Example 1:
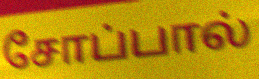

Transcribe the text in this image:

சோப்பால்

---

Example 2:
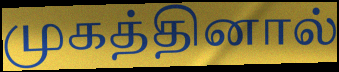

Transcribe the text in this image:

முகத்தினால்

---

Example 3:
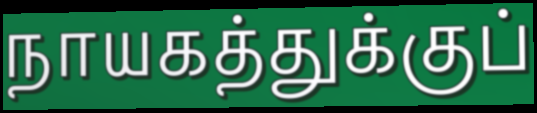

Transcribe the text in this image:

நாயகத்துக்குப்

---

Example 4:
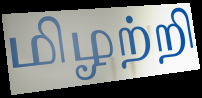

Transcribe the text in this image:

மிழற்றி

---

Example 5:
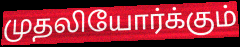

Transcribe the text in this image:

முதலியோர்க்கும்